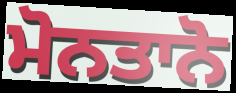
ਮੋਨਤਾਨੋ